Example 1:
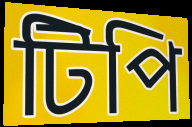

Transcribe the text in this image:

টিপি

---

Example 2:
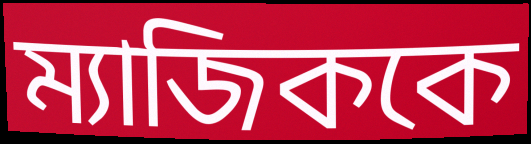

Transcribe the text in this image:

ম্যাজিককে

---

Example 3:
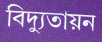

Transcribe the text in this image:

বিদ্যুতায়ন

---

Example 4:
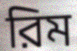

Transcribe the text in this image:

রিম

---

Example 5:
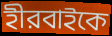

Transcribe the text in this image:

হীরবাইকে